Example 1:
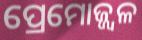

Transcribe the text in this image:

ପ୍ରେମୋଜ୍ଜ୍ୱଳ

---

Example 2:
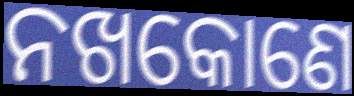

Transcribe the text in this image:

ନଖକୋଣେ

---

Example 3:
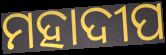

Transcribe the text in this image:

ମହାଦୀପ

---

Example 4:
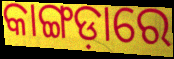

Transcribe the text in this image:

କାଙ୍ଗଡ଼ାରେ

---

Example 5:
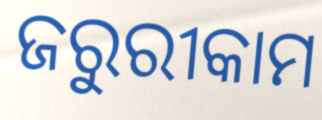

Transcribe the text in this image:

ଜରୁରୀକାମ